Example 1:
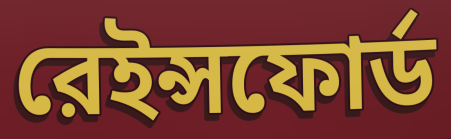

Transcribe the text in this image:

রেইন্সফোর্ড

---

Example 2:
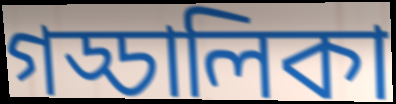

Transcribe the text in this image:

গড্ডালিকা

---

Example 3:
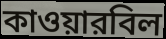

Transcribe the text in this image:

কাওয়ারবিল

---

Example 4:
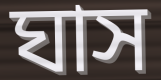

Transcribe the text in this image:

ঘাস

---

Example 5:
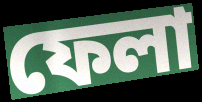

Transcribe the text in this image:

ফেলা